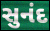
સુનંદ